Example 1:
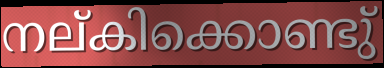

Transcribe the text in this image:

നല്കിക്കൊണ്ടു്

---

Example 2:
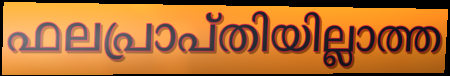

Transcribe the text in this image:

ഫലപ്രാപ്തിയില്ലാത്ത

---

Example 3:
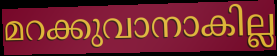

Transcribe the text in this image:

മറക്കുവാനാകില്ല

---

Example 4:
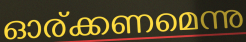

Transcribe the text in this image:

ഓര്ക്കണമെന്നു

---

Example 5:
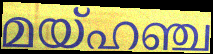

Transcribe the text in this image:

മയ്ഹഞ്ച